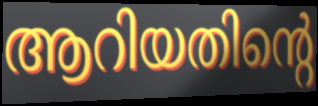
ആറിയതിന്റെ